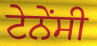
ਟੇਨੇਂਸੀ